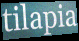
tilapia